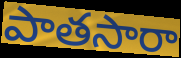
పాతసారా